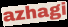
azhagi